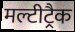
मल्टीट्रैक